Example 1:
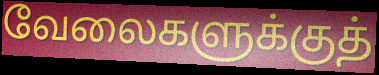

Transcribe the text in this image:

வேலைகளுக்குத்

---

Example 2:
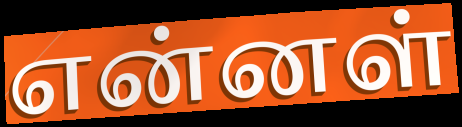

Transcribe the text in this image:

என்னள்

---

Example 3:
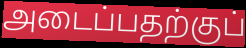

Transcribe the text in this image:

அடைப்பதற்குப்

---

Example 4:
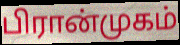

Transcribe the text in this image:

பிரான்முகம்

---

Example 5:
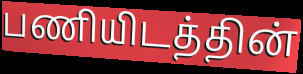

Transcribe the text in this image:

பணியிடத்தின்